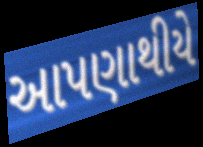
આપણાથીયે